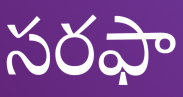
సరఫా